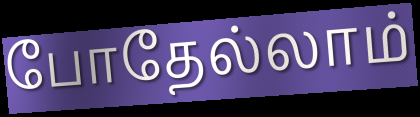
போதேல்லாம்